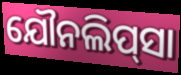
ଯୌନଲିପ୍‌ସା